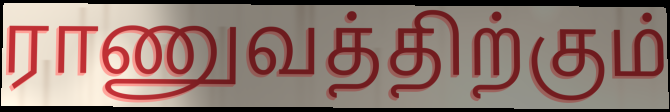
ராணுவத்திற்கும்